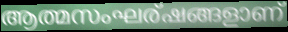
ആത്മസംഘര്ഷങ്ങളാണ്